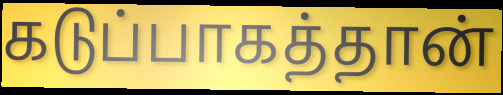
கடுப்பாகத்தான்